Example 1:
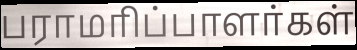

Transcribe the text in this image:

பராமரிப்பாளர்கள்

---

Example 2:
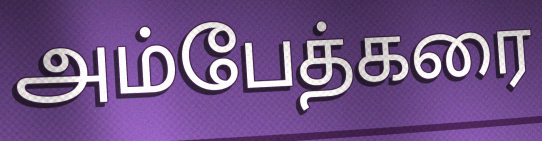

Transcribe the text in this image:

அம்பேத்கரை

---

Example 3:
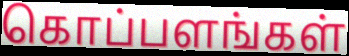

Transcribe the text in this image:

கொப்பளங்கள்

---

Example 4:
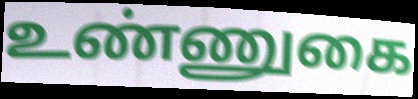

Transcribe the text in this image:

உண்ணுகை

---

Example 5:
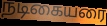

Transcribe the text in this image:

நடிகையரை